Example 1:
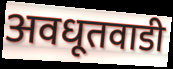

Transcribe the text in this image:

अवधूतवाडी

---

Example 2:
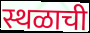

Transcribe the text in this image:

स्थळाची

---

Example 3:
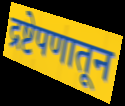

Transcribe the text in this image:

द्रष्टेपणातून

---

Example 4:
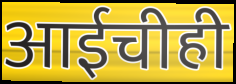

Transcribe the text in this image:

आईचीही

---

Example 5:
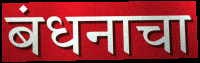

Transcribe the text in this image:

बंधनाचा